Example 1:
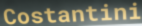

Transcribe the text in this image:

Costantini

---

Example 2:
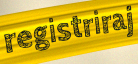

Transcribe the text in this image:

registriraj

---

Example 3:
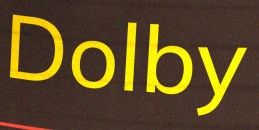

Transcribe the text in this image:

Dolby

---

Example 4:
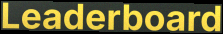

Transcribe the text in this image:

Leaderboard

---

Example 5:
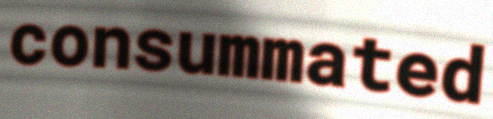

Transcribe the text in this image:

consummated